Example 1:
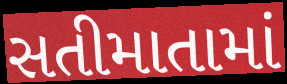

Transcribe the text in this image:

સતીમાતામાં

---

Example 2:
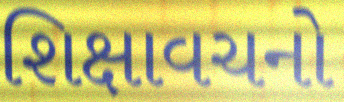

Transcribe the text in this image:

શિક્ષાવચનો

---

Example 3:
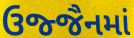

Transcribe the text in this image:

ઉજ્જૈનમાં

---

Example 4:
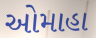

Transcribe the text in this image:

ઓમાહા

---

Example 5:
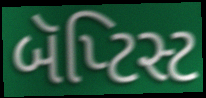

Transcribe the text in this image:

બૅપ્ટિસ્ટ